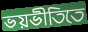
ভয়ভীতিতে